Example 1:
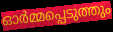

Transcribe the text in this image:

ഓർമ്മപ്പെടുത്തും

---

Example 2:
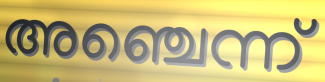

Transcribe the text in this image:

അഞ്ചെന്ന്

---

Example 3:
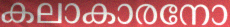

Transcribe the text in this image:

കലാകാരനോ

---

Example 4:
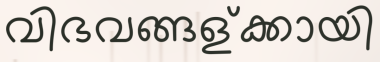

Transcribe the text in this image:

വിഭവങ്ങള്ക്കായി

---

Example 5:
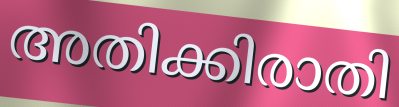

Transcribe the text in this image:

അതിക്കിരാതി